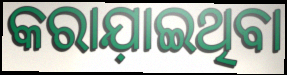
କରାଯ଼ାଇଥିବା